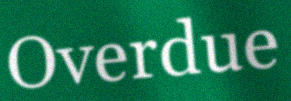
Overdue